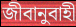
জীবানুবাহী